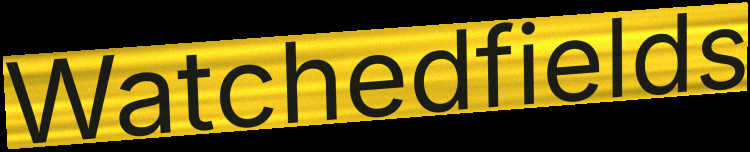
Watchedfields